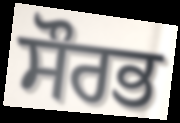
ਸੌਰਭ